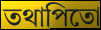
তথাপিতো